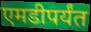
एमडीपर्यंत